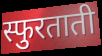
स्फुरताती